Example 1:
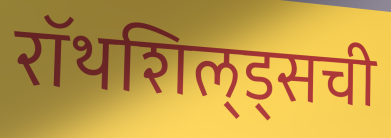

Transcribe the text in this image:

रॉथशिल्ड्सची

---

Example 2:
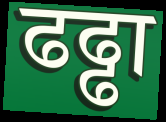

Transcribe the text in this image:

ढढ्ढा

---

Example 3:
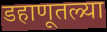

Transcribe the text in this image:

डहाणूतल्या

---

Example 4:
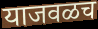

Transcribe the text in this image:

याजवळच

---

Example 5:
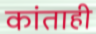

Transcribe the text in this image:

कांताही